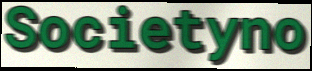
Societyno